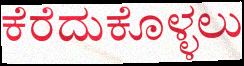
ಕೆರೆದುಕೊಳ್ಳಲು